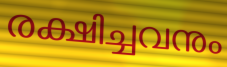
രക്ഷിച്ചവനും